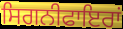
ਸਿਗਨੀਫਾਇਰਾਂ